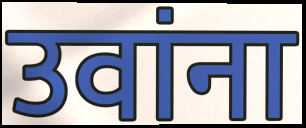
उवांना